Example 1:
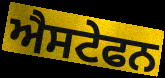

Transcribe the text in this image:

ਐਸਟੇਫਨ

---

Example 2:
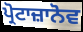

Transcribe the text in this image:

ਪ੍ਰੋਟਾਜ਼ਾਨੋਵ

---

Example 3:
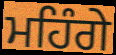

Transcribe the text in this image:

ਮਹਿੰਗੇ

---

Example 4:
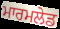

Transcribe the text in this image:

ਮਾਰਮਲੇਡ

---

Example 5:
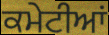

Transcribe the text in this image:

ਕਮੇਟੀਆਂ